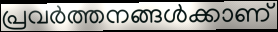
പ്രവർത്തനങ്ങൾക്കാണ്